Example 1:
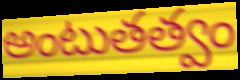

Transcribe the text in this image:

అంటుతత్వం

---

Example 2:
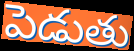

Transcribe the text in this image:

పెడుతు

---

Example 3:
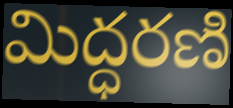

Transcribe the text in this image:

మిద్ధరణి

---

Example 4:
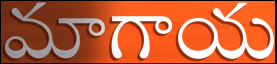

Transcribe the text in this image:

మాగాయ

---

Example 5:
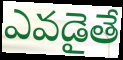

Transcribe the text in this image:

ఎవడైతే